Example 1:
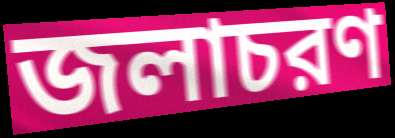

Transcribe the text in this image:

জলাচরণ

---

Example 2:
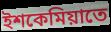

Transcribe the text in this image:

ইশকেমিয়াতে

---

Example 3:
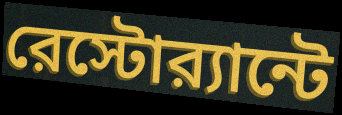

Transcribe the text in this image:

রেস্টোর‍্যান্টে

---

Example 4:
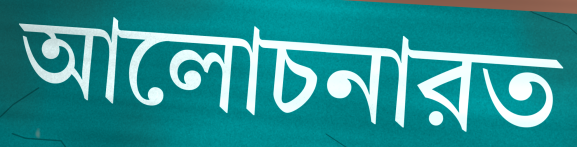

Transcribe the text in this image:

আলোচনারত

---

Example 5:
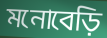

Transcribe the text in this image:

মনোবেড়ি